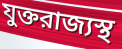
যুক্তরাজ্যস্থ